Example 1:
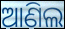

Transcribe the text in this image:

ଆଣିଲ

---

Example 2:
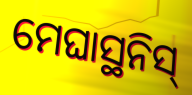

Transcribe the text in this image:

ମେଘାସ୍ଥନିସ୍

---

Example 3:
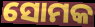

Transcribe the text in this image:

ସୋମକ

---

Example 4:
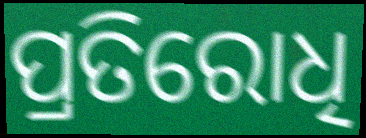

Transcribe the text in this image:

ପ୍ରତିରୋଧି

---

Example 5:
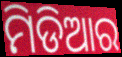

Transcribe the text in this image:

ମିଡିଆର